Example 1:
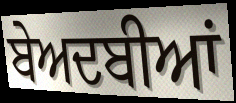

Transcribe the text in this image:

ਬੇਅਦਬੀਆਂ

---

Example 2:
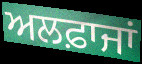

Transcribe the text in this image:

ਅਲਫ਼ਾਜਾਂ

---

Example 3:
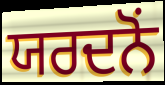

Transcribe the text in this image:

ਯਰਦਨੋਂ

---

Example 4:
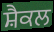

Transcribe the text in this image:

ਸ਼ੈਕਲ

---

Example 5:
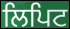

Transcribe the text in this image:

ਲਿਪਿਟ